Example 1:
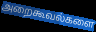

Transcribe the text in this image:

அறைகூவல்களை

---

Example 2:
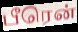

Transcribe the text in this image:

பீரென்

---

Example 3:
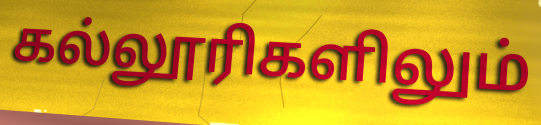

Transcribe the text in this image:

கல்லூரிகளிலும்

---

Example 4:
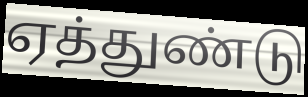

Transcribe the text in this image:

ஏத்துண்டு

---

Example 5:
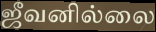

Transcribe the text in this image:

ஜீவனில்லை